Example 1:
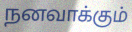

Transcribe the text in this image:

நனவாக்கும்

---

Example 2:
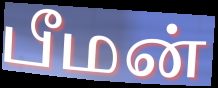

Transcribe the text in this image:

பீமன்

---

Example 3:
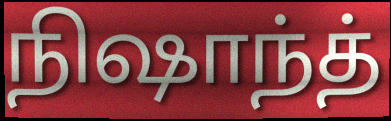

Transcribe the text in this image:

நிஷாந்த்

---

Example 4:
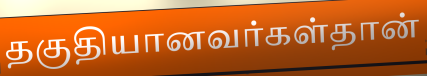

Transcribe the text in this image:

தகுதியானவர்கள்தான்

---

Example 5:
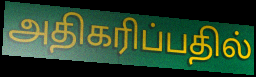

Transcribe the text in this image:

அதிகரிப்பதில்